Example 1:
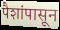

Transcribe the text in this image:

पैशांपासून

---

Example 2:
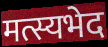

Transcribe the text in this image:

मत्स्यभेद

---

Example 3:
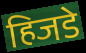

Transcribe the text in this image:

हिजडे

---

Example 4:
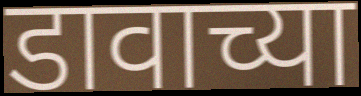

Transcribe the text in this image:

डावाच्या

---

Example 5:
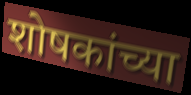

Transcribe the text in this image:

शोषकांच्या